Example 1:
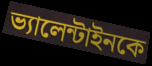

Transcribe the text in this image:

ভ্যালেন্টাইনকে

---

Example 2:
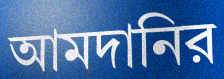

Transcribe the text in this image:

আমদানির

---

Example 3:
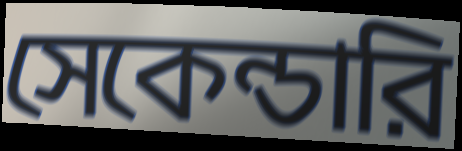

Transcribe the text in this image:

সেকেন্ডারি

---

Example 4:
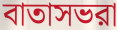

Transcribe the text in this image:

বাতাসভরা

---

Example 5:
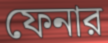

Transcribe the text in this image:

ফেনার